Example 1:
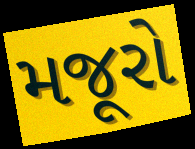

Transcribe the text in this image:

મજૂરો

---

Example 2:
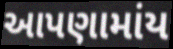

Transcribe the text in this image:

આપણામાંય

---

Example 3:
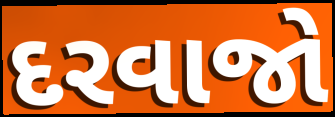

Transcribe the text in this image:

દરવાજો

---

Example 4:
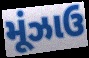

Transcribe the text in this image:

મૂંઝાઉ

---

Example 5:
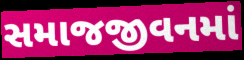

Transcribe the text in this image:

સમાજજીવનમાં